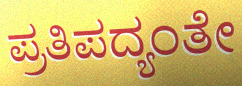
ಪ್ರತಿಪದ್ಯಂತೇ